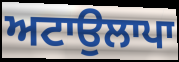
ਅਟਾਉਲਾਪਾ